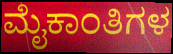
ಮೈಕಾಂತಿಗಳ